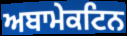
ਅਬਾਮੇਕਟਿਨ